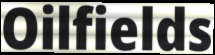
Oilfields